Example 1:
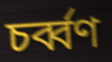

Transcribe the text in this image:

চর্ব্বণ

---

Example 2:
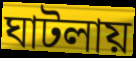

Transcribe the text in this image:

ঘাটলায়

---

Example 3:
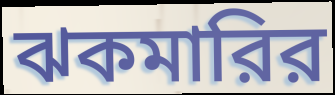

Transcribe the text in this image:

ঝকমারির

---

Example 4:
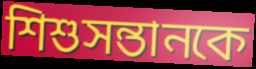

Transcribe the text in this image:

শিশুসন্তানকে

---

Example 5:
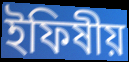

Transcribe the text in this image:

ইফিষীয়